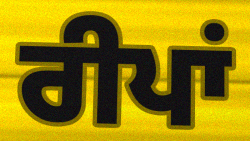
ਰੀਪਾਂ